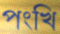
পংখি